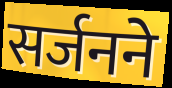
सर्जनने